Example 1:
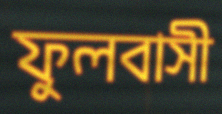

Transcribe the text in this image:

ফুলবাসী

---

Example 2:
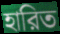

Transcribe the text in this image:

হারিত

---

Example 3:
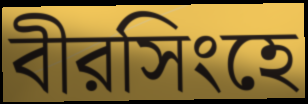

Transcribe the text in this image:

বীরসিংহে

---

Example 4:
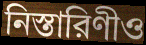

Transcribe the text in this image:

নিস্তারিণীও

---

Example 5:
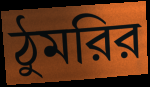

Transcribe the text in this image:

ঠুমরির